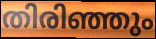
തിരിഞ്ഞും